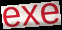
exe